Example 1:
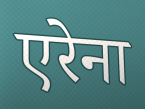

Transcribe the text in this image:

एरेना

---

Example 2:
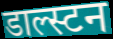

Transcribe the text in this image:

डाल्स्टन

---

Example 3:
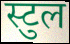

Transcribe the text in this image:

स्टुल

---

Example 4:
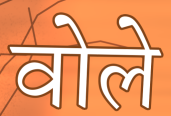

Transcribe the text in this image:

वोले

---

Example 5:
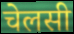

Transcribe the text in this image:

चेलसी